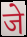
जे